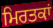
ਮਿਰਤਕਾਂ